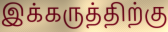
இக்கருத்திற்கு